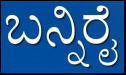
ಬನ್ನಿರೈ